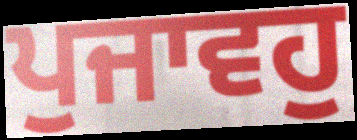
ਪੁਜਾਵਹੁ